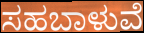
ಸಹಬಾಳುವೆ